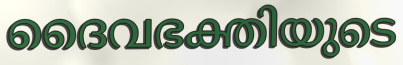
ദൈവഭക്തിയുടെ